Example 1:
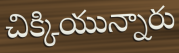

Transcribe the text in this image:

చిక్కియున్నారు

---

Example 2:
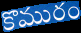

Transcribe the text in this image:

కొమురం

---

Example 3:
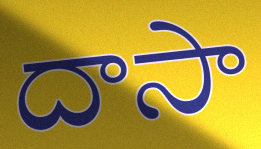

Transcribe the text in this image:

దాసా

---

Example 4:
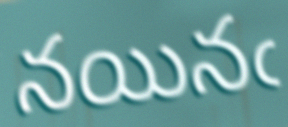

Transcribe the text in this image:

నయినఁ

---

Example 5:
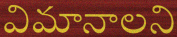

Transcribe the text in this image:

విమానాలని